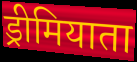
ड्रीमियाता